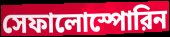
সেফালোস্পোরিন